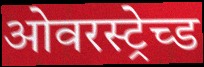
ओवरस्ट्रेच्ड